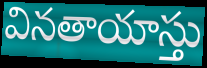
వినతాయాస్తు